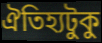
ঐতিহ্যটুকু